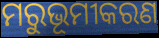
ମରୁଭୂମୀକରଣ